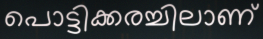
പൊട്ടിക്കരച്ചിലാണ്